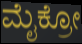
ಮೈಕ್ರೋ